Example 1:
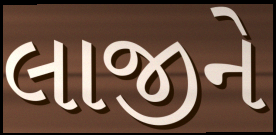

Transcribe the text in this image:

લાજીને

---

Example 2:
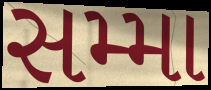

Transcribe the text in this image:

સમ્મા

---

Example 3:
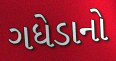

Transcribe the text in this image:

ગધેડાનો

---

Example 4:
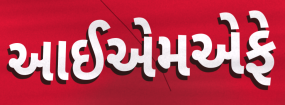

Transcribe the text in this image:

આઈએમએફે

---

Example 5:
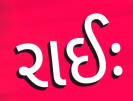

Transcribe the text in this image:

રાઈઃ